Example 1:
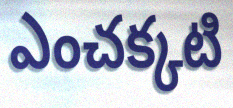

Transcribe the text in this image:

ఎంచక్కటి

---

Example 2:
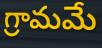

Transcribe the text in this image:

గ్రామమే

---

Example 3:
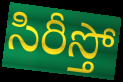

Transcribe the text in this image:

సిరీస్తో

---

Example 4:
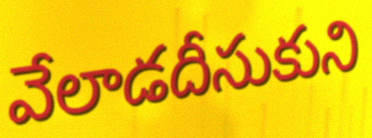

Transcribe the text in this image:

వేలాడదీసుకుని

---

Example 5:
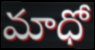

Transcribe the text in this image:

మాధో